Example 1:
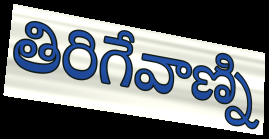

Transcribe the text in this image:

తిరిగేవాణ్ని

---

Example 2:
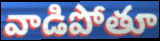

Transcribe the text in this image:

వాడిపోతూ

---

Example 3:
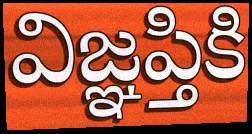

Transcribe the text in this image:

విజ్ఞప్తికి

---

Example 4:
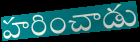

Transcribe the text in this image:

హరించాడు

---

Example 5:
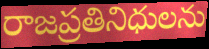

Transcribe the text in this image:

రాజప్రతినిధులను